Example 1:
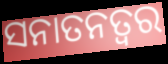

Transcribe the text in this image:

ସନାତନତ୍ୱର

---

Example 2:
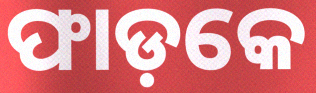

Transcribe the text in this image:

ଫାଡ଼କେ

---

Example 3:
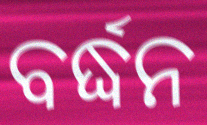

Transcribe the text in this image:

ବର୍ଦ୍ଧନ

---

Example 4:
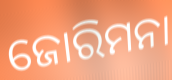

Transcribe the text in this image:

ଜୋରିମନା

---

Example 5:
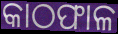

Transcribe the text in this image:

କାଠଫାଳ